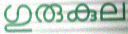
ഗുരുകുല